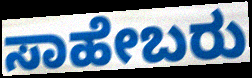
ಸಾಹೇಬರು